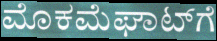
ಮೊಕಮೆಘಾಟ್‌ಗೆ